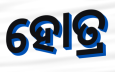
ହୋତ୍ର